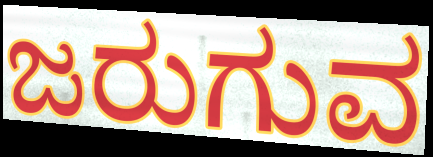
ಜರುಗುವ